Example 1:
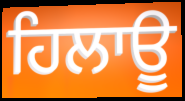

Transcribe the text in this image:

ਹਿਲਾਊ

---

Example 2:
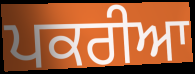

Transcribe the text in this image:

ਪਕਰੀਆ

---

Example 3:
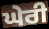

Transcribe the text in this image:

ਘੇਰੀ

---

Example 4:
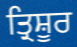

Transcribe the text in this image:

ਤ੍ਰਿਸ਼ੂਰ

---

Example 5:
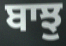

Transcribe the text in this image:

ਬਾਝੁ